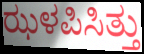
ಝಳಪಿಸಿತ್ತು